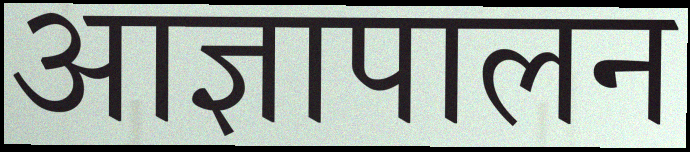
आज्ञापालन